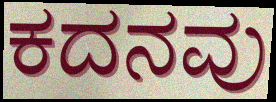
ಕದನವು